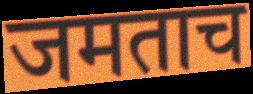
जमताच